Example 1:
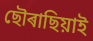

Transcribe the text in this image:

ছৌৰাছিয়াই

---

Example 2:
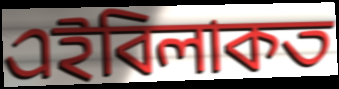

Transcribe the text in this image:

এইবিলাকত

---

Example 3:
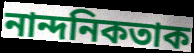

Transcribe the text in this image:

নান্দনিকতাক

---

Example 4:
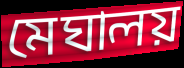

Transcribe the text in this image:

মেঘালয়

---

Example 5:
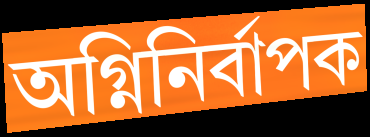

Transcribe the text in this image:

অগ্নিনিৰ্বাপক